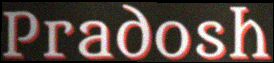
Pradosh